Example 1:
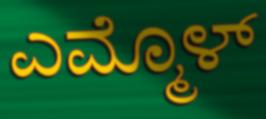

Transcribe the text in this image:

ಎಮ್ಮೊಳ್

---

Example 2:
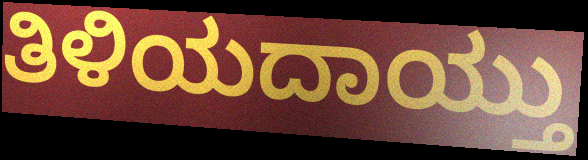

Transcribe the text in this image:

ತಿಳಿಯದಾಯ್ತು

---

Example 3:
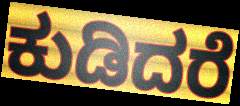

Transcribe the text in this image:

ಕುಡಿದರೆ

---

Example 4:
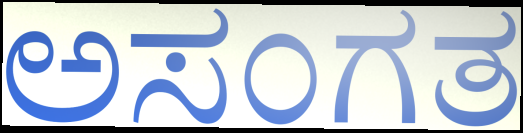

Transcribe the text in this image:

ಅಸಂಗತ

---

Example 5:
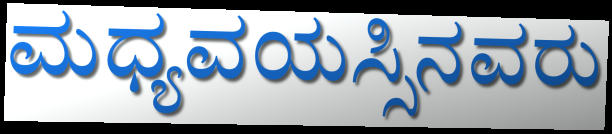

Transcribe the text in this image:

ಮಧ್ಯವಯಸ್ಸಿನವರು